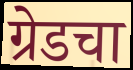
ग्रेडचा